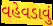
વહેવડાવું